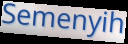
Semenyih